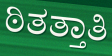
ಠಿತತ್ತಾತಿ